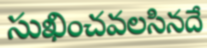
సుఖించవలసినదే